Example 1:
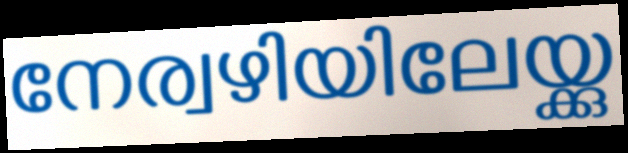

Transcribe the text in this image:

നേര്വഴിയിലേയ്ക്കു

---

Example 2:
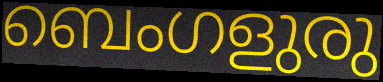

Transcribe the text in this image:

ബെംഗളുരു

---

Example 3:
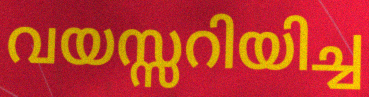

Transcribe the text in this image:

വയസ്സറിയിച്ച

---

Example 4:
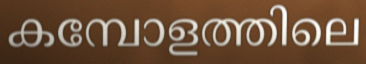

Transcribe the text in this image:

കമ്പോളത്തിലെ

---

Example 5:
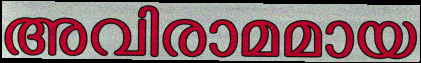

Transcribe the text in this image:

അവിരാമമായ